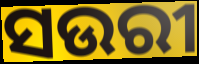
ସଉରୀ